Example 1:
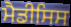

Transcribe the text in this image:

ਮੈਡੀਸਿਸ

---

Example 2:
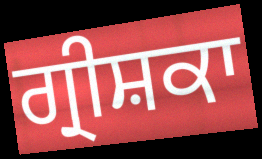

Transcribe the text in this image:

ਗ੍ਰੀਸ਼ਕਾ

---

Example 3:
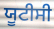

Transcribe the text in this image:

ਯੂਟੀਸੀ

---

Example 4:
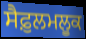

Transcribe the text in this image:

ਸੈਫ਼ੁਲਮਲੂਕ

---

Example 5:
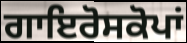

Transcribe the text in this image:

ਗਾਇਰੋਸਕੋਪਾਂ